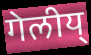
गेलीय्